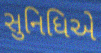
સુનિધિએ